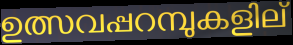
ഉത്സവപ്പറമ്പുകളില്